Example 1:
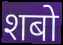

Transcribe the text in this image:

शबो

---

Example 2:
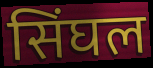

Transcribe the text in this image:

सिंघल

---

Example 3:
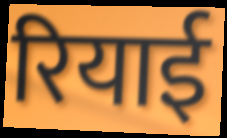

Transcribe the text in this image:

रियाई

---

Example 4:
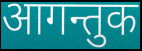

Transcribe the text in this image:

आगन्तुक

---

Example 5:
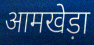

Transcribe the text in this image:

आमखेड़ा